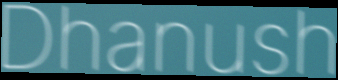
Dhanush